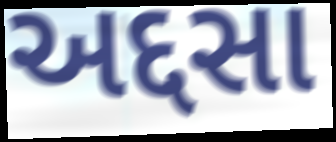
અદ્દસા